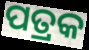
ପତ୍ରକ